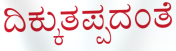
ದಿಕ್ಕುತಪ್ಪದಂತೆ